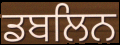
ਡਬਲਿਨ